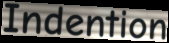
Indention